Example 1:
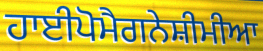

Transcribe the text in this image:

ਹਾਈਪੋਮੈਗਨੇਸ਼ੀਮੀਆ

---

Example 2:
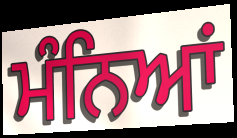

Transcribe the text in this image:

ਮੰਨਿਆਂ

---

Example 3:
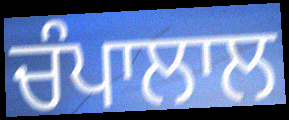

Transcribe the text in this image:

ਚੰਪਾਲਾਲ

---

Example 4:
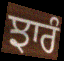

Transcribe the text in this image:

ਝਾਰੰ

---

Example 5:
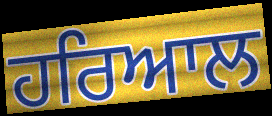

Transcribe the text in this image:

ਹਰਿਆਲ